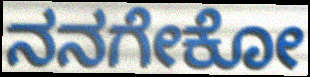
ನನಗೇಕೋ